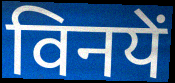
विनयें